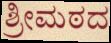
ಶ್ರೀಮಠದ